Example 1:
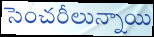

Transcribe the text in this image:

సెంచరీలున్నాయి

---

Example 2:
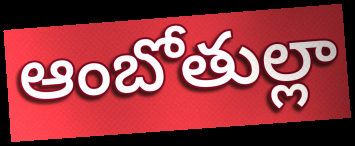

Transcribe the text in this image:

ఆంబోతుల్లా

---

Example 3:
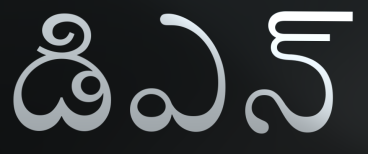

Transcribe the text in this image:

డిఎన్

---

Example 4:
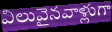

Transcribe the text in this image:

విలువైనవాళ్లుగా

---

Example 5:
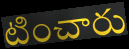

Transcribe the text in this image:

టించారు